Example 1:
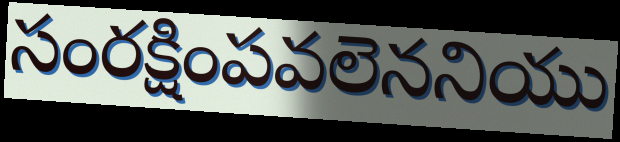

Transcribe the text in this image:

సంరక్షింపవలెననియు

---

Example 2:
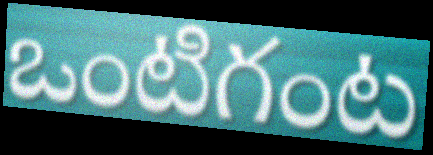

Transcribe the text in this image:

ఒంటిగంట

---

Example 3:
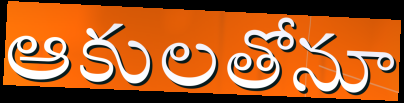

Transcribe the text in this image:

ఆకులతోనూ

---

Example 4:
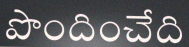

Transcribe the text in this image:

పొందించేది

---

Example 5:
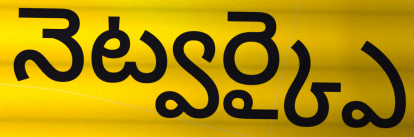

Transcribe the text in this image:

నెట్వర్క్పై